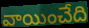
వాయించేది